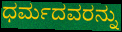
ಧರ್ಮದವರನ್ನು